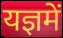
यज्ञमें